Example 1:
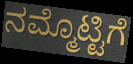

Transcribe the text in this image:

ನಮ್ಮೊಟ್ಟಿಗೆ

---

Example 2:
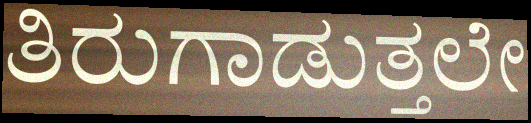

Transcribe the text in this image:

ತಿರುಗಾಡುತ್ತಲೇ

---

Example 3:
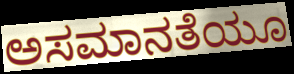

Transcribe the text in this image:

ಅಸಮಾನತೆಯೂ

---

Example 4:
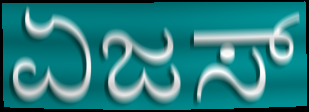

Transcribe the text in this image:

ಏಜಸ್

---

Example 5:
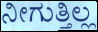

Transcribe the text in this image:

ನೀಗುತ್ತಿಲ್ಲ